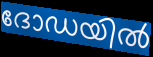
ദോഡയിൽ